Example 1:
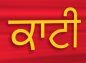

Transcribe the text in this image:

ਕਾਟੀ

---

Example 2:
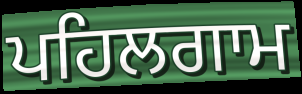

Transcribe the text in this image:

ਪਹਿਲਗਾਮ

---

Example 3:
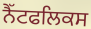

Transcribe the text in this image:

ਨੈੱਟਫਲਿਕਸ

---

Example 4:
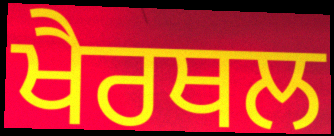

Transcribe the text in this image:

ਖੈਰਥਲ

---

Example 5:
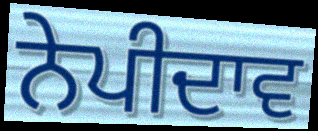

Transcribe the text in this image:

ਨੇਪੀਦਾਵ